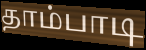
தாம்பாடி